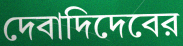
দেবাদিদেবের